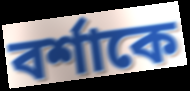
বর্শাকে